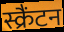
स्क्रैंटन